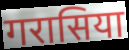
गरासिया